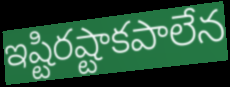
ఇష్టిరష్టాకపాలేన